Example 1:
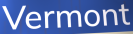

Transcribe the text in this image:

Vermont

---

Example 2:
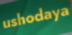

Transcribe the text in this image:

ushodaya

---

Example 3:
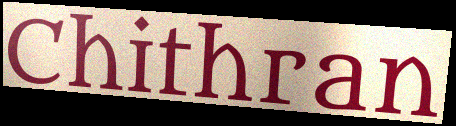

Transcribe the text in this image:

Chithran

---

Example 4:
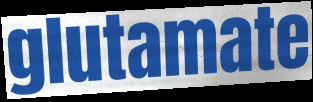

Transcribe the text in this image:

glutamate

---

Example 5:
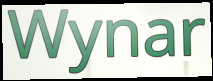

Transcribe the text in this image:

Wynar